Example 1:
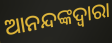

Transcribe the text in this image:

ଆନନ୍ଦଙ୍କଦ୍ୱାରା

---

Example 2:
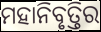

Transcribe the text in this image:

ମହାନିବୃତ୍ତିର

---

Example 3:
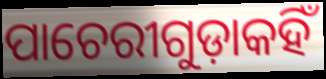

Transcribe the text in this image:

ପାଚେରୀଗୁଡ଼ାକହିଁ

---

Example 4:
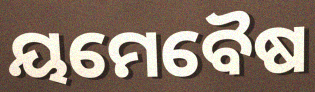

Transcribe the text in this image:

ୟମେବୈଷ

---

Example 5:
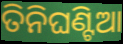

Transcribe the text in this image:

ତିନିଘଣ୍ଟିଆ